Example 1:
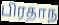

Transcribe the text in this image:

பிரதாந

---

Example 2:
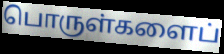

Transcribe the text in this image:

பொருள்களைப்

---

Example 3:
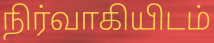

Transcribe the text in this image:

நிர்வாகியிடம்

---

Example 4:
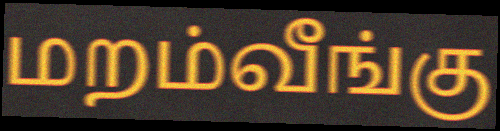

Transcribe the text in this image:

மறம்வீங்கு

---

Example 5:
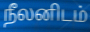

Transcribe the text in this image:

நீலனிடம்